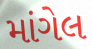
માંગેલ